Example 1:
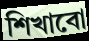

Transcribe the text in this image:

শিখাবো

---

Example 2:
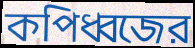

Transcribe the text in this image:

কপিধ্বজের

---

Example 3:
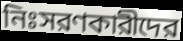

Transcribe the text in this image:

নিঃসরণকারীদের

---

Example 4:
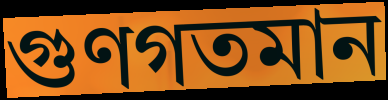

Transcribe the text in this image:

গুণগতমান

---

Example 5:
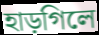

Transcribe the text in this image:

হাড়গিলে